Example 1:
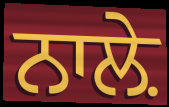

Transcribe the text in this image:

ਨਾਲ਼ੇ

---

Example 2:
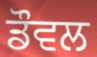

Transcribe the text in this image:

ਡੌਵਲ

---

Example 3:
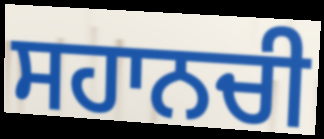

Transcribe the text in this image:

ਸਹਾਨਚੀ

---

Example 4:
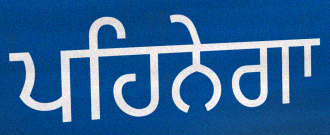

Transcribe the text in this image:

ਪਹਿਨੇਗਾ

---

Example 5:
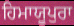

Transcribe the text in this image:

ਹਿਮਾਯੂਪੁਰਾ